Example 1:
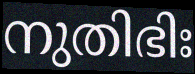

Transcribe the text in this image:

നുതിഭിഃ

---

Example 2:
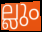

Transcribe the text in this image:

ല്ലും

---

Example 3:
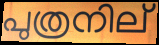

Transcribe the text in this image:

പുത്രനില്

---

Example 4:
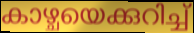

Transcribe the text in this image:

കാഴ്ചയെക്കുറിച്ച്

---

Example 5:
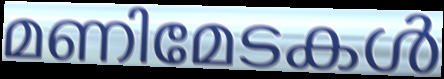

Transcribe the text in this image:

മണിമേടകൾ